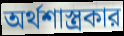
অর্থশাস্ত্রকার